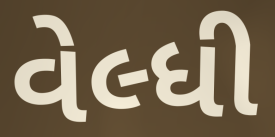
વેલ્ધી